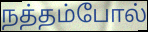
நத்தம்போல்